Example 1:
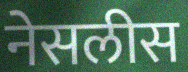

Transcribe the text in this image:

नेसलीस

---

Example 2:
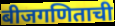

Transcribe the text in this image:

बीजगणिताची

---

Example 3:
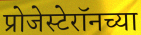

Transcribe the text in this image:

प्रोजेस्टेरॉनच्या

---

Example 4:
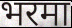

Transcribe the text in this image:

भरमा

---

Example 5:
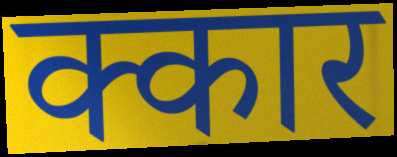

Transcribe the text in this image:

क्कार